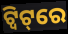
ଟ୍ବିଟ୍‌ରେ